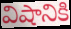
విషానికి